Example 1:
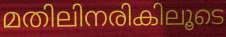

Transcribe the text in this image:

മതിലിനരികിലൂടെ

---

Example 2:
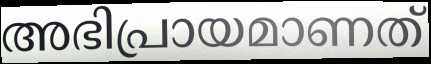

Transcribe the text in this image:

അഭിപ്രായമാണത്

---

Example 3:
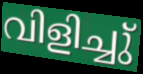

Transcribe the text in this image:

വിളിച്ചു്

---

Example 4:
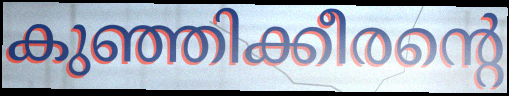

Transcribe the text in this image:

കുഞ്ഞിക്കീരന്റെ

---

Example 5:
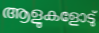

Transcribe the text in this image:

ആളുകളോടു്